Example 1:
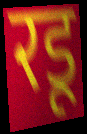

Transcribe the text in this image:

रडू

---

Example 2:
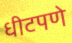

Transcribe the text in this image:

धीटपणे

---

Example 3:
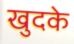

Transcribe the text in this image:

खुदके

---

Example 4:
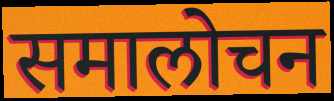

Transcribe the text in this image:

समालोचन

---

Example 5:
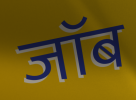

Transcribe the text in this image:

जॉब